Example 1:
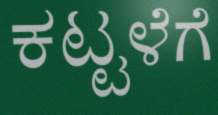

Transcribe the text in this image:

ಕಟ್ಟಳೆಗೆ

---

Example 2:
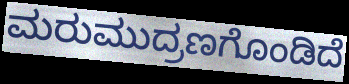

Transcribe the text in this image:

ಮರುಮುದ್ರಣಗೊಂಡಿದೆ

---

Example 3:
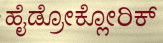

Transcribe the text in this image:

ಹೈಡ್ರೋಕ್ಲೋರಿಕ್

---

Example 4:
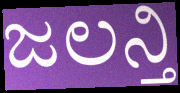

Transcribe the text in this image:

ಜಲನ್ತಿ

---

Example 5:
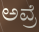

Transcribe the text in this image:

ಅವ್ರೆ